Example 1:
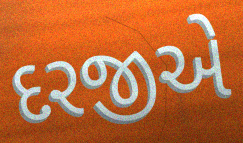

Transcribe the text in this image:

દરજીએ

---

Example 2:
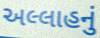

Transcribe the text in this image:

અલ્લાહનું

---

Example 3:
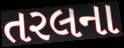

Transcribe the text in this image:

તરલના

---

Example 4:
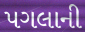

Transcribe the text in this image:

પગલાની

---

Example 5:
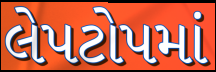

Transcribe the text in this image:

લેપટોપમાં